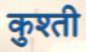
कुश्‍ती